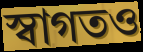
স্বাগতও